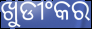
ଖୁଡୀଂକର